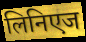
लिनिएज